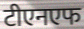
टीएनएफ